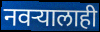
नवऱ्यालाही